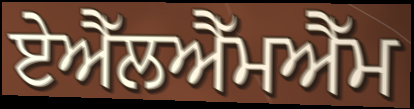
ਏਐੱਲਐੱਮਐੱਮ